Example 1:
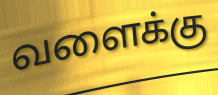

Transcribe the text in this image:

வளைக்கு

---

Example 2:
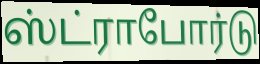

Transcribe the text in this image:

ஸ்ட்ராபோர்டு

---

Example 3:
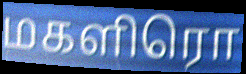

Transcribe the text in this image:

மகளிரொ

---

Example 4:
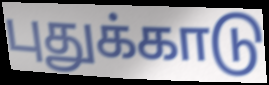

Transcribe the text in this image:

புதுக்காடு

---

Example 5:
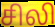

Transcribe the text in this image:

சிலி